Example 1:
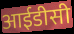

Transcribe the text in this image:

आईडीसी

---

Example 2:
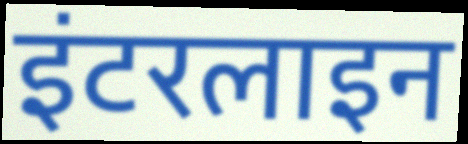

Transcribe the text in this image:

इंटरलाइन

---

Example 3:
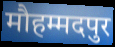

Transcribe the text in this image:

मौहम्मदपुर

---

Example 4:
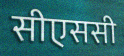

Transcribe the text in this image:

सीएससी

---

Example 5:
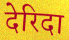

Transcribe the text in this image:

देरिदा